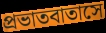
প্রভাতবাতাসে